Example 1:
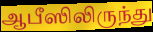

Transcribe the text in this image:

ஆபீஸிலிருந்து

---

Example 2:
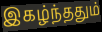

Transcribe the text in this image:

இகழ்ந்ததும்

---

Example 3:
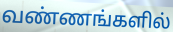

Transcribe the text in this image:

வண்ணங்களில்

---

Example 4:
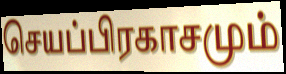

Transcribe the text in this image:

செயப்பிரகாசமும்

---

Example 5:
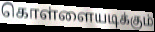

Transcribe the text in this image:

கொள்ளையடிக்கும்